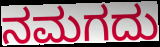
ನಮಗದು